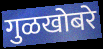
गुळखोबरे